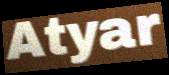
Atyar